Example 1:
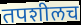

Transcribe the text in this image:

तपशीलच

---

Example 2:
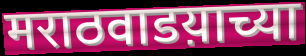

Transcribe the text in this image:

मराठवाडय़ाच्या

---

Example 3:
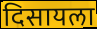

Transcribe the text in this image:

दिसायला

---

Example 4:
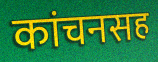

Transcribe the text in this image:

कांचनसह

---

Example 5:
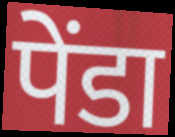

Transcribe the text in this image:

पेंडा